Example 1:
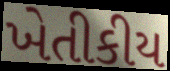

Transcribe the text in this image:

ખેતીકીય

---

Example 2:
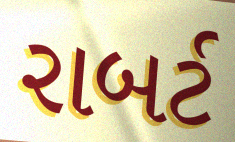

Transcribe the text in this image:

રાબર્ટ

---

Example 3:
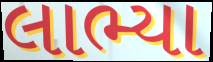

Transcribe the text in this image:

લાભ્યા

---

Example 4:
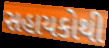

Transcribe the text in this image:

સહાયકોથી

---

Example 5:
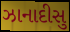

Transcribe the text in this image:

ઝાનાદીસુ